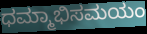
ಧಮ್ಮಾಭಿಸಮಯಂ